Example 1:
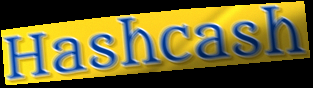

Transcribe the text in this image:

Hashcash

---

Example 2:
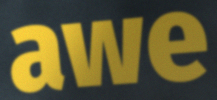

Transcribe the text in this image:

awe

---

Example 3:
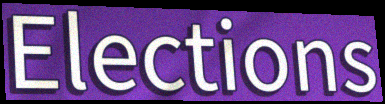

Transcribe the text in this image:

Elections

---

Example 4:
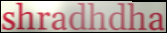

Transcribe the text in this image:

shradhdha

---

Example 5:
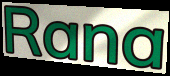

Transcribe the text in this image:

Rana